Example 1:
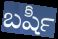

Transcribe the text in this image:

బషీర్‍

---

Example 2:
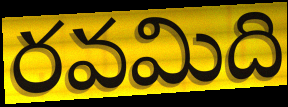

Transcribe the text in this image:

రవమిది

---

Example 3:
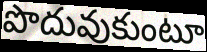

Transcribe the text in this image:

పొదువుకుంటూ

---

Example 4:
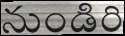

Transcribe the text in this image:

నుండిరి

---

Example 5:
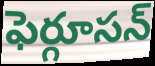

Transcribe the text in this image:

ఫెర్గూసన్